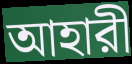
আহারী